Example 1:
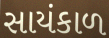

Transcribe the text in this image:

સાયંકાળ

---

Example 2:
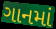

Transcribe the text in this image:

ગાનમાં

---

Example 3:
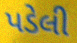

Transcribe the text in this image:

પડેલી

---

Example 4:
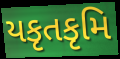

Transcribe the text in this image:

યકૃતકૃમિ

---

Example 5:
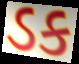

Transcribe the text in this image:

ડક